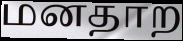
மனதாற